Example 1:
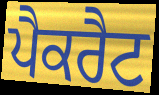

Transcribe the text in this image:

ਪੈਕਰੈਟ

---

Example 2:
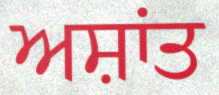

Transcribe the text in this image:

ਅਸ਼ਾਂਤ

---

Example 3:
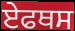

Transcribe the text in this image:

ਏਫਥਸ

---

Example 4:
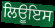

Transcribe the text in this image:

ਲਿਊਇਸ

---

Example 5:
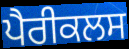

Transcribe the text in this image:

ਪੈਰੀਕਲਸ